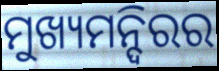
ମୁଖ୍ୟମନ୍ଦିରର